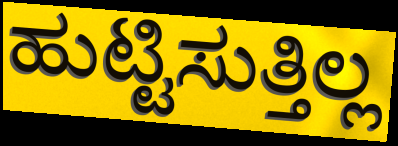
ಹುಟ್ಟಿಸುತ್ತಿಲ್ಲ